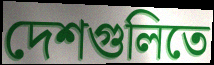
দেশগুলিতে